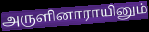
அருளினாராயினும்